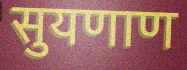
सुयणाण